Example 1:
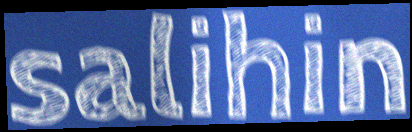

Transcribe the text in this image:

salihin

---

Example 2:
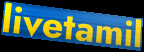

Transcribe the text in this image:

livetamil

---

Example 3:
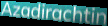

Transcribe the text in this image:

Azadirachtin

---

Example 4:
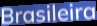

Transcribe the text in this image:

Brasileira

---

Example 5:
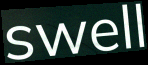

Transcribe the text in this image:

swell